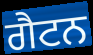
ਗੈਟਨ